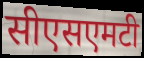
सीएसएमटी